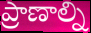
ప్రాణాల్ని